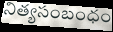
నిత్యసంబంధం